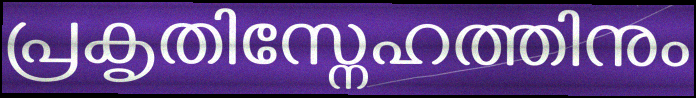
പ്രകൃതിസ്നേഹത്തിനും